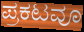
ಪ್ರಕಟವೂ